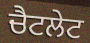
ਚੈਟਲੇਟ